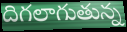
దిగలాగుతున్న